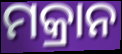
ମକ୍ରାନ